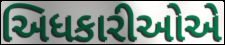
અિધકારીઓએ